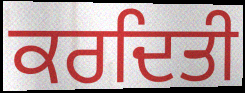
ਕਰਦਿਤੀ